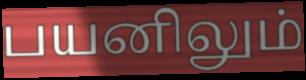
பயனிலும்